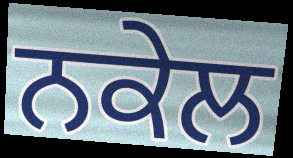
ਨਕੇਲ